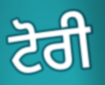
ਟੋਰੀ